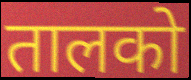
तालको